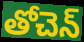
తోచెన్